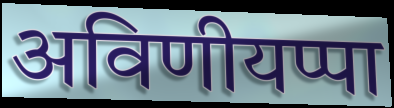
अविणीयप्पा